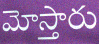
మోస్తారు